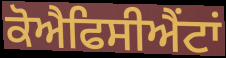
ਕੋਐਫਿਸੀਐਂਟਾਂ